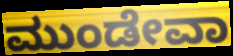
ಮುಂಡೇವಾ